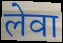
लेवा